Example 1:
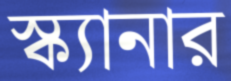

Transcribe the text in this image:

স্ক্যানার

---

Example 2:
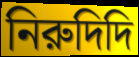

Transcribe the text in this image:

নিরুদিদি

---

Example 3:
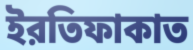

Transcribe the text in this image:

ইরতিফাকাত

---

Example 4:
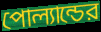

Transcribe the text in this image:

পোল্যান্ডের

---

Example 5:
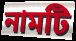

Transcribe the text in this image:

নামটি